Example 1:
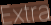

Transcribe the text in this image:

Extra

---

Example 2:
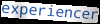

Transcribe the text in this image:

experiencer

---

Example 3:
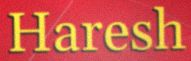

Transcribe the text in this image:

Haresh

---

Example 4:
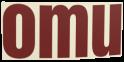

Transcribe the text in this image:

omu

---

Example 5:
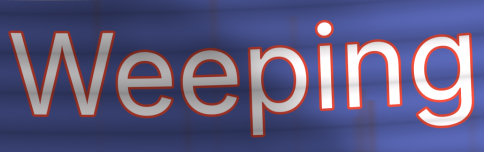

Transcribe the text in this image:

Weeping